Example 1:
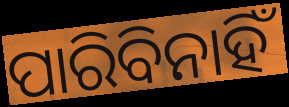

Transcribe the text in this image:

ପାରିବିନାହିଁ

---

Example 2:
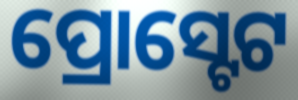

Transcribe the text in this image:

ପ୍ରୋସ୍ଟେଟ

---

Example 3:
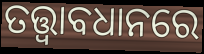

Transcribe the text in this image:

ତତ୍ତ୍ଵାବଧାନରେ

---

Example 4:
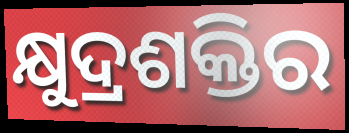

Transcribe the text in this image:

କ୍ଷୁଦ୍ରଶକ୍ତିର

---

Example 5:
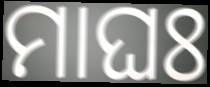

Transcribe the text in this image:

ମାଘଃ